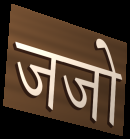
जजो